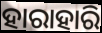
ହାରାହାରି